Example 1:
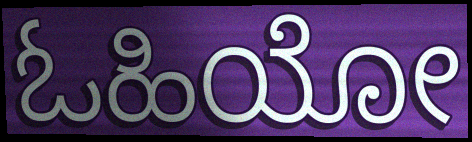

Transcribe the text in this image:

ಓಹಿಯೋ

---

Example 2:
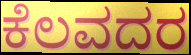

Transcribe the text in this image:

ಕೆಲವದರ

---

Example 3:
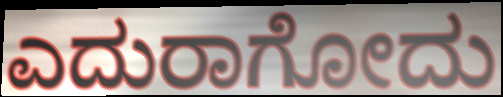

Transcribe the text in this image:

ಎದುರಾಗೋದು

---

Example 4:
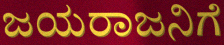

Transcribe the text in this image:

ಜಯರಾಜನಿಗೆ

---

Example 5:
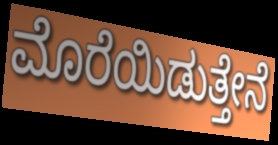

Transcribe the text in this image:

ಮೊರೆಯಿಡುತ್ತೇನೆ